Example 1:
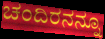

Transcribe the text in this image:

ಚಂದಿರನನ್ನೂ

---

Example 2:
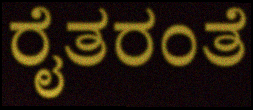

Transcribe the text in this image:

ರೈತರಂತೆ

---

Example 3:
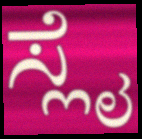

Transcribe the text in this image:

ಸ್ಲೈ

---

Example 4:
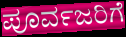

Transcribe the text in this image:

ಪೂರ್ವಜರಿಗೆ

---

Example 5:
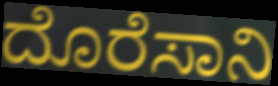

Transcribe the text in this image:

ದೊರೆಸಾನಿ